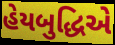
હેયબુદ્ધિએ